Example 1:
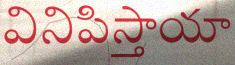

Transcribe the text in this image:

వినిపిస్తాయా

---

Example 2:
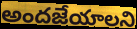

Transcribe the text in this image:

అందజేయాలని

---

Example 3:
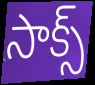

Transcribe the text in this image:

సాక్స్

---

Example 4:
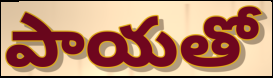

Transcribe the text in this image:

పాయతో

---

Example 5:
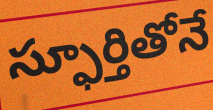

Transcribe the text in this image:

స్ఫూర్తితోనే